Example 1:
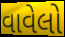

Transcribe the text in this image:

વાવેલો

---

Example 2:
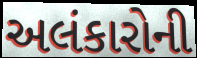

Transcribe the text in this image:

અલંકારોની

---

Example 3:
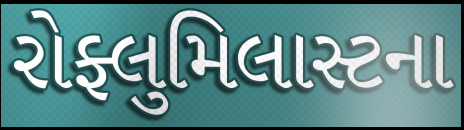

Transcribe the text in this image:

રોફ્લુમિલાસ્ટના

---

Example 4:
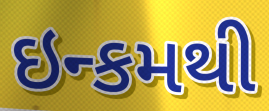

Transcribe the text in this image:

ઇન્કમથી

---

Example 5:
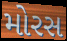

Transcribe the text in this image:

મોરસ